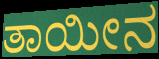
ತಾಯೀನ